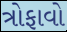
ત્રોફાવો